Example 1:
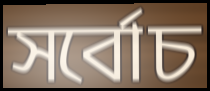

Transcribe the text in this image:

সৰ্বোচ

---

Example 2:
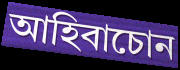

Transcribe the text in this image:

আহিবাচোন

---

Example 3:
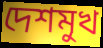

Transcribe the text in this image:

দেশমুখ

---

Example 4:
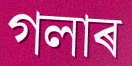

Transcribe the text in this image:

গলাৰ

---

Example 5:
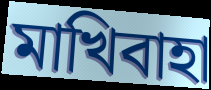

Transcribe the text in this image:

মাখিবাহা